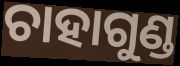
ଚାହାଗୁଣ୍ଡ